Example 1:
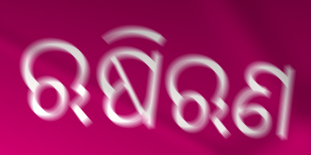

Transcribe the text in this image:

ଋଷିଋଣ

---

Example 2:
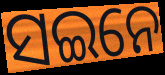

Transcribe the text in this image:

ସଇନେ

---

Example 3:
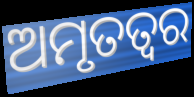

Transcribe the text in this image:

ଅମୃତତ୍ଵର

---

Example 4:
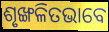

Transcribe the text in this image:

ଶୃଙ୍ଖଳିତଭାବେ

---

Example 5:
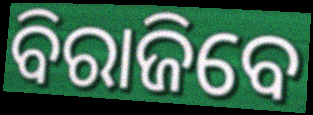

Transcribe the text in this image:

ବିରାଜିବେ